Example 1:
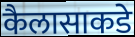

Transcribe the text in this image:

कैलासाकडे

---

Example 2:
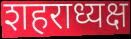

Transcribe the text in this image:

शहराध्यक्ष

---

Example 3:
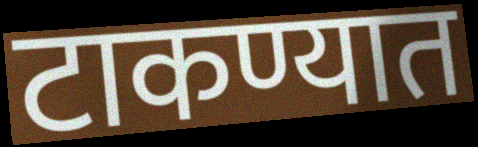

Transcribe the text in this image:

टाकण्यात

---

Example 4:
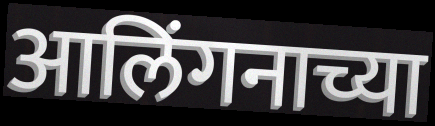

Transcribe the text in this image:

आलिंगनाच्या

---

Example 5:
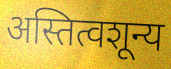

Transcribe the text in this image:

अस्तित्वशून्य